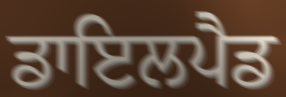
ਡਾਇਲਪੈਡ